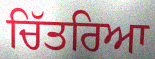
ਚਿੱਤਰਿਆ